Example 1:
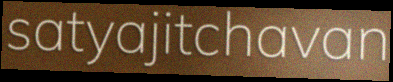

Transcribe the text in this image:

satyajitchavan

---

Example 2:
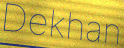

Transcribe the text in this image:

Dekhan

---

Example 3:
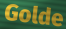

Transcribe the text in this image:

Golde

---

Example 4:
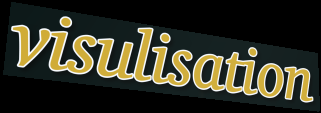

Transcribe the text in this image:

visulisation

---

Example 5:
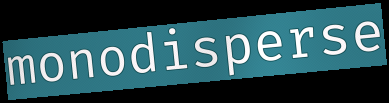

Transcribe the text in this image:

monodisperse